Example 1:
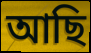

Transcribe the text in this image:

আছি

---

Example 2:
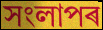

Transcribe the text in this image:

সংলাপৰ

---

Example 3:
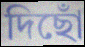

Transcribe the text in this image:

দিছোঁ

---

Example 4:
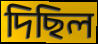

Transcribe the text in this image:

দিছিল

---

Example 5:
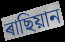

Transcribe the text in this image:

ৰাছিয়ান